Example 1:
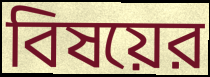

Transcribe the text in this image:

বিষয়ের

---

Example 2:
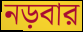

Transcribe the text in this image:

নড়বার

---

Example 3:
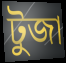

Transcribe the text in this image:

টুজা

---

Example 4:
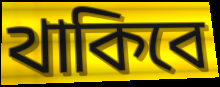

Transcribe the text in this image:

থাকিবে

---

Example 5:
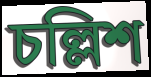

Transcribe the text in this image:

চল্লিশ